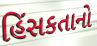
હિંસકતાનો